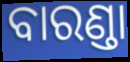
ବାରଣ୍ଡା